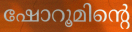
ഷോറൂമിന്റെ